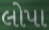
લોપા